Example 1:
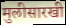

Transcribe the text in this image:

मुलीसारखी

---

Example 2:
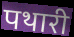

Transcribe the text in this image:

पथारी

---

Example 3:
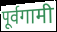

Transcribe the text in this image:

पूर्वगामी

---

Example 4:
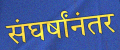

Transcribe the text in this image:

संघर्षांनंतर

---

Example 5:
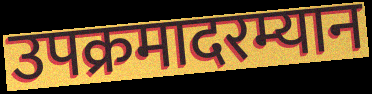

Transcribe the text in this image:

उपक्रमादरम्यान